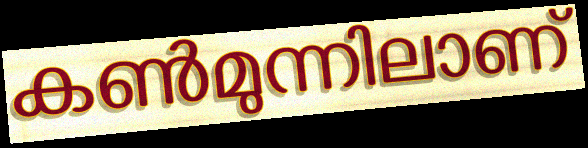
കൺമുന്നിലാണ്